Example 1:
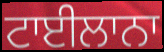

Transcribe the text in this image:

ਟਾਈਲਾਨਾ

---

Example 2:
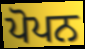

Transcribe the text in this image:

ਪੋਪਨ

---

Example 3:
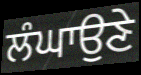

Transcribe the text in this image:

ਲੰਘਾਉਣੇ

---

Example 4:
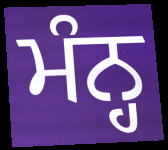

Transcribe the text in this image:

ਮੰਨ੍ਹ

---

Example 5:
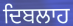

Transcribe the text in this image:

ਦਿਬਲਾਹ